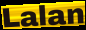
Lalan